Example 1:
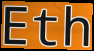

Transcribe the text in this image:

Eth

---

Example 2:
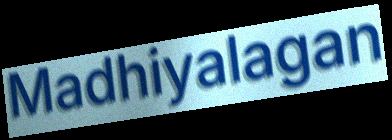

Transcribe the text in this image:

Madhiyalagan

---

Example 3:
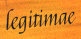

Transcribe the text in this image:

legitimae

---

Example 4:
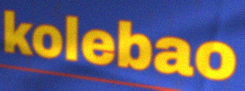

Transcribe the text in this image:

kolebao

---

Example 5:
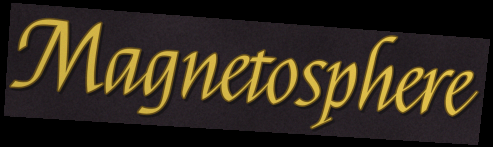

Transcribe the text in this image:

Magnetosphere